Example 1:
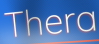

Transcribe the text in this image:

Thera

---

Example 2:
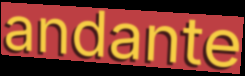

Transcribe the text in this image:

andante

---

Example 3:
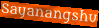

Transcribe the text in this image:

Sayanangshu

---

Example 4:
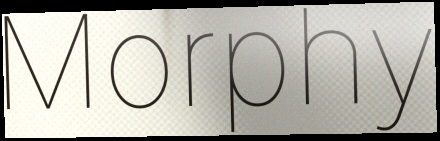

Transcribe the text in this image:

Morphy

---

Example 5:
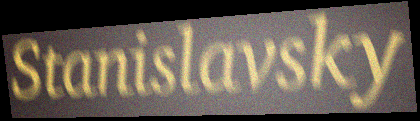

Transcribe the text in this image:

Stanislavsky